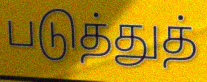
படுத்துத்